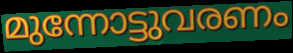
മുന്നോട്ടുവരണം